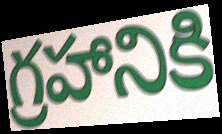
గ్రహానికి